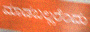
ಮಾಡಬಲ್ಲರೆಂದು